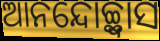
ଆନନ୍ଦୋଚ୍ଛ୍ୱାସ